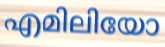
എമിലിയോ